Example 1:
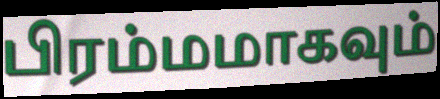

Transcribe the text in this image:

பிரம்மமாகவும்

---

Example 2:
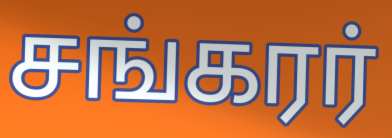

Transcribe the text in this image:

சங்கரர்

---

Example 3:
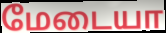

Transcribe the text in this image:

மேடையா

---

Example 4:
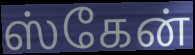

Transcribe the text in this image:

ஸ்கேன்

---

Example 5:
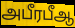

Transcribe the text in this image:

அபீரபீஆ